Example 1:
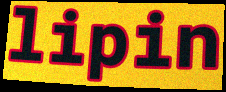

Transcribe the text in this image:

lipin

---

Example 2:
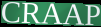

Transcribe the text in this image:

CRAAP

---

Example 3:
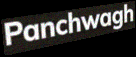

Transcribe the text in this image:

Panchwagh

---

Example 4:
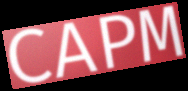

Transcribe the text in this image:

CAPM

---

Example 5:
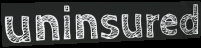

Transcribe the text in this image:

uninsured